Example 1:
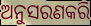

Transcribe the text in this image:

ଅନୁସରଣକରି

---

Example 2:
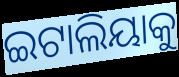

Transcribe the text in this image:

ଇଟାଲିୟାକୁ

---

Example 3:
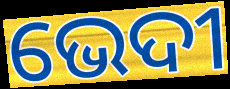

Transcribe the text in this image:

ଭେଦୀ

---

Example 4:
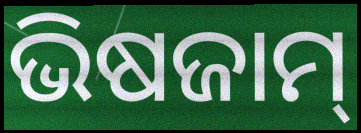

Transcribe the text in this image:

ଭିଷଜାମ୍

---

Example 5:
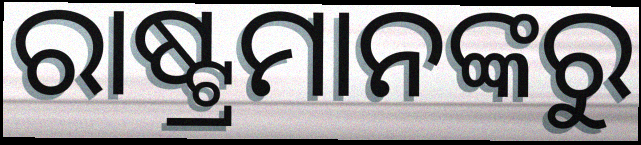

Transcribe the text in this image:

ରାଷ୍ଟ୍ରମାନଙ୍କରୁ